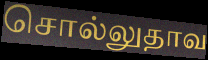
சொல்லுதாவ